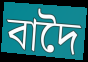
বাদৈ